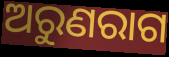
ଅରୁଣରାଗ